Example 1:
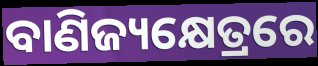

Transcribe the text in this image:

ବାଣିଜ୍ୟକ୍ଷେତ୍ରରେ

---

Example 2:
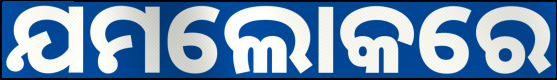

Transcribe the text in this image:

ଯମଲୋକରେ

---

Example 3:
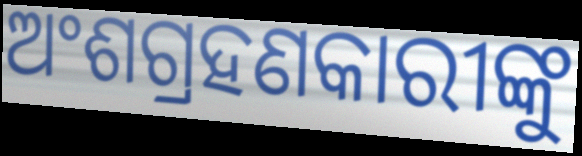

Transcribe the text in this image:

ଅଂଶଗ୍ରହଣକାରୀଙ୍କୁ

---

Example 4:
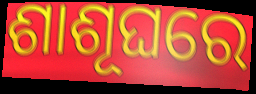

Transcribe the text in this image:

ଶାଶୂଘରେ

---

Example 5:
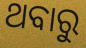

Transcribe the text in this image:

ଥବାରୁ